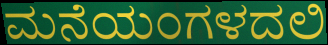
ಮನೆಯಂಗಳದಲಿ